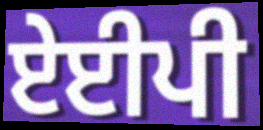
ਏਈਪੀ